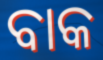
ବାକ